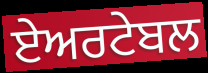
ਏਅਰਟੇਬਲ